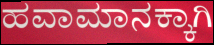
ಹವಾಮಾನಕ್ಕಾಗಿ